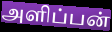
அளிப்பன்